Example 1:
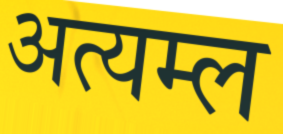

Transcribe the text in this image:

अत्यम्ल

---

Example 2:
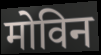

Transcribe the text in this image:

मोविन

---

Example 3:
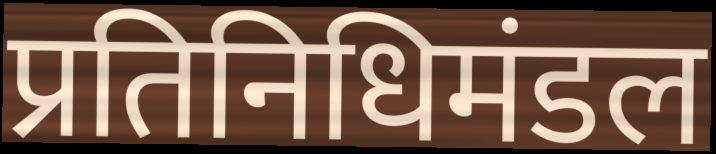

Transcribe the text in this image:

प्रतिनिधिमंडल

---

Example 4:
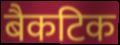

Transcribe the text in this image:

बैकटिक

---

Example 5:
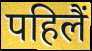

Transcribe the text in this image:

पहिलैं